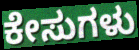
ಕೇಸುಗಳು